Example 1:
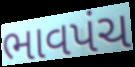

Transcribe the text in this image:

ભાવપંચ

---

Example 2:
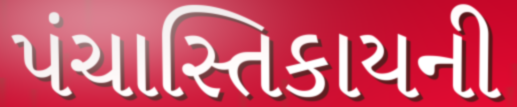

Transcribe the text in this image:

પંચાસ્તિકાયની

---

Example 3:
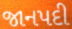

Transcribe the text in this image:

જાનપદી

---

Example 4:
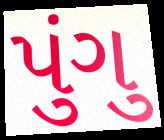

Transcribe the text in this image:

પુંગુ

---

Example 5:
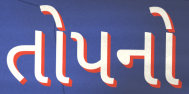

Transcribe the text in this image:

તોપનો